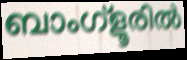
ബാംഗ്ളൂരിൽ